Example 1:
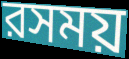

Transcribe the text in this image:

রসময়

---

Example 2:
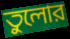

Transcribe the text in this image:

তুলোর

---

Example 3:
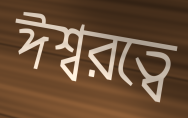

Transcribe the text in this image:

ঈশ্বরত্বে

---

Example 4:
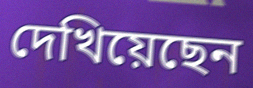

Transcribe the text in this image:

দেখিয়েছেন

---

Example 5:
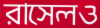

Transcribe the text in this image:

রাসেলও